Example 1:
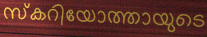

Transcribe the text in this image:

സ്കറിയോത്തായുടെ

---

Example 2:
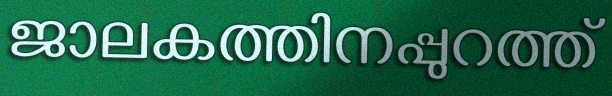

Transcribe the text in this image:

ജാലകത്തിനപ്പുറത്ത്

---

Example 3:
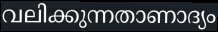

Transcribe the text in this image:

വലിക്കുന്നതാണാദ്യം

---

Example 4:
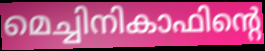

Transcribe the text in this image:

മെച്ചിനികാഫിന്റെ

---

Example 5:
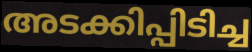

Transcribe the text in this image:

അടക്കിപ്പിടിച്ച